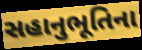
સહાનુભૂતિના